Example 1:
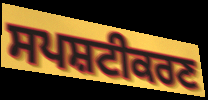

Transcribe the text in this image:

ਸਪਸ਼ਟੀਕਰਣ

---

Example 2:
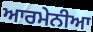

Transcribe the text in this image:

ਆਰਮੇਨੀਆ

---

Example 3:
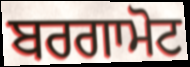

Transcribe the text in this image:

ਬਰਗਾਮੋਟ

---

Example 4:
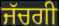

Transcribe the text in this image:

ਜੱਚਗੀ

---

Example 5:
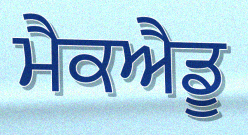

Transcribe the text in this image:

ਮੈਕਐਡੂ